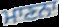
ਮਾਣਨਾ